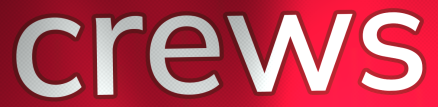
crews